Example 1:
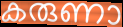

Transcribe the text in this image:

കരുണാ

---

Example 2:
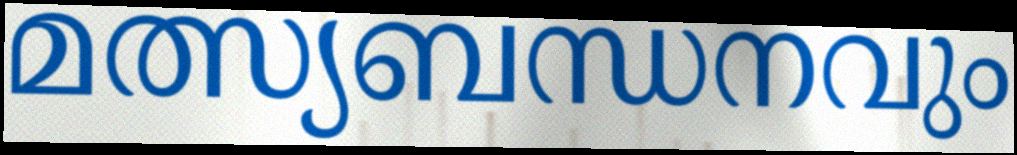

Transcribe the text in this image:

മത്സ്യബന്ധനവും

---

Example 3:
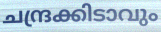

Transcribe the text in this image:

ചന്ദ്രക്കിടാവും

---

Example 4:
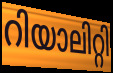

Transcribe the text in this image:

റിയാലിറ്റി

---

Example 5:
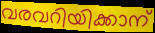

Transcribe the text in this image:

വരവറിയിക്കാന്